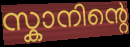
സ്കാനിന്റെ